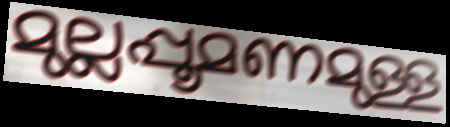
മുല്ലപ്പൂമണമുള്ള